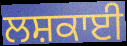
ਲਸ਼ਕਾਈ